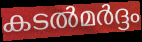
കടൽമർദ്ദം